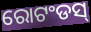
ରୋଟଂଡସ୍